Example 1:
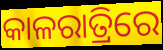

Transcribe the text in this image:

କାଳରାତ୍ରିରେ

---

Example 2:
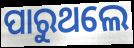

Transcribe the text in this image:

ପାରୁଥଲେ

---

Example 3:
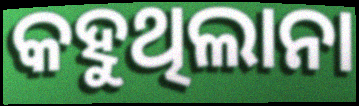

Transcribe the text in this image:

କହୁଥିଲାନା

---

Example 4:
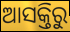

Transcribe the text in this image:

ଆସକ୍ତିରୁ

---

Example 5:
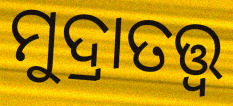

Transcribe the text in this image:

ମୁଦ୍ରାତତ୍ତ୍ବ